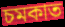
চমকাত